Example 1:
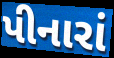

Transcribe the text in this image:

પીનારાં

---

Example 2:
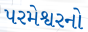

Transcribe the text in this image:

પરમેશ્વરનો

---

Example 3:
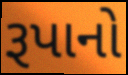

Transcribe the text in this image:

રૂપાનો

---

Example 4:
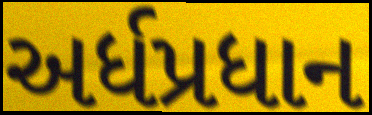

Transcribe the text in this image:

અર્ધપ્રધાન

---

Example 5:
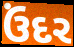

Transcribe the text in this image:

ઉંદર